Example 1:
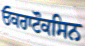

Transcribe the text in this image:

ਓਕਰਾਟੌਕਸਿਨ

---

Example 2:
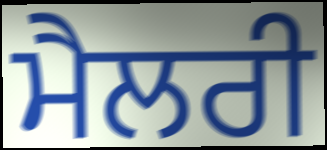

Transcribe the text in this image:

ਮੈਲਰੀ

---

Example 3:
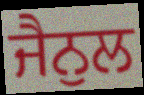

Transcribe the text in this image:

ਜੈਨੁਲ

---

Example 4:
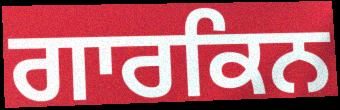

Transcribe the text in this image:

ਗਾਰਕਿਨ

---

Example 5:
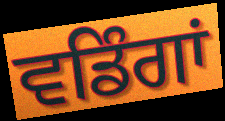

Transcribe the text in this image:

ਵਡਿੰਗਾਂ